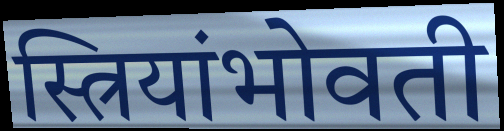
स्त्रियांभोवती